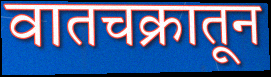
वातचक्रातून